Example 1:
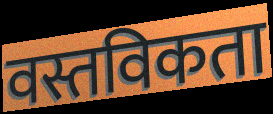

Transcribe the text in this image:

वस्तविकता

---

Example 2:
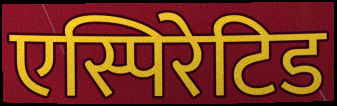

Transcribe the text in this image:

एस्पिरेटिड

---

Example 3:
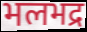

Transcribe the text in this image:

भलभद्र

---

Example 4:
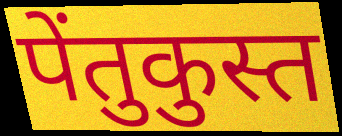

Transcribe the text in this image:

पेंतुकुस्त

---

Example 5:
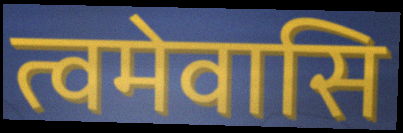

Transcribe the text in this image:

त्वमेवासि